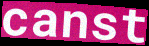
canst